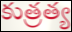
కుత్రత్య